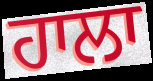
ਹਾਲਾ